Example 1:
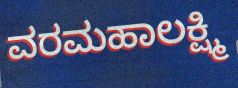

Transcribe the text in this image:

ವರಮಹಾಲಕ್ಷ್ಮಿ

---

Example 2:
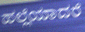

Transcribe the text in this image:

ಹಲ್ಲೆಯಾದರೆ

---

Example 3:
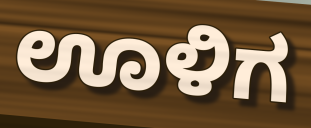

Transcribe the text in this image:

ಊಳಿಗ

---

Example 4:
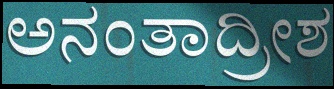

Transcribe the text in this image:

ಅನಂತಾದ್ರೀಶ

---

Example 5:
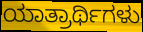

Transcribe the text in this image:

ಯಾತ್ರಾರ್ಥಿಗಳು